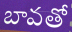
బావతో